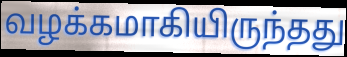
வழக்கமாகியிருந்தது